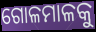
ଗୋଳମାଳକୁ